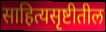
साहित्यसृष्टीतील